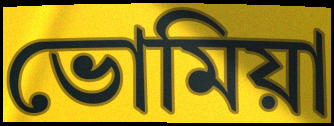
ভোমিয়া